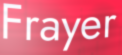
Frayer